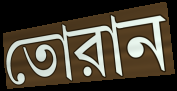
তোরান